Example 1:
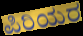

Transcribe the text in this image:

ಪಿರಿಯರ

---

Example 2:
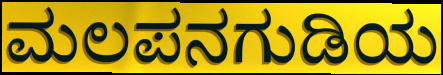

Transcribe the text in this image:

ಮಲಪನಗುಡಿಯ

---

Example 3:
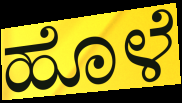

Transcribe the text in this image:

ಹೊಳೆ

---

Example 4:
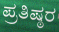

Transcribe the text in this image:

ಪ್ರತಿಷ್ಠರ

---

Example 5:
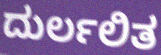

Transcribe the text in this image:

ದುರ್ಲಲಿತ